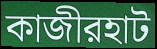
কাজীরহাট